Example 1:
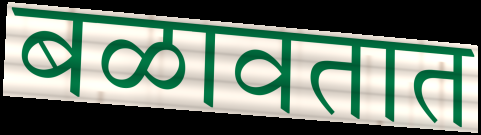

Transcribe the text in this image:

बळावतात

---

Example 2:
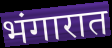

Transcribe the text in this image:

भंगारात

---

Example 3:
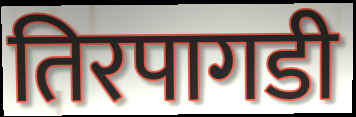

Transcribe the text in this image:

तिरपागडी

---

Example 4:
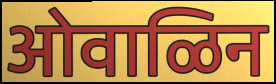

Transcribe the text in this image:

ओवाळिन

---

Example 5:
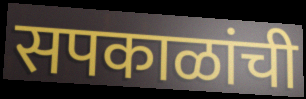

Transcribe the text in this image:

सपकाळांची